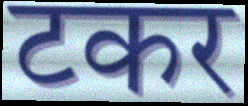
टकर